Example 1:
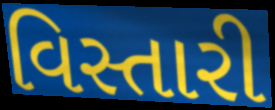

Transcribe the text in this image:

વિસ્તારી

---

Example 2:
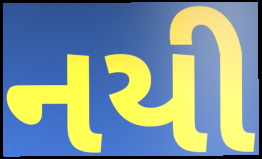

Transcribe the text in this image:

નયી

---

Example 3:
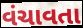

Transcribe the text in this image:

વંચાવતા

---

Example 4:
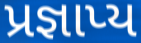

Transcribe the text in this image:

પ્રજ્ઞાપ્ય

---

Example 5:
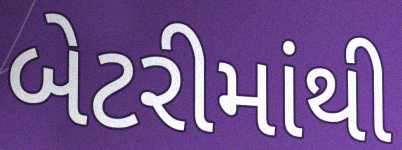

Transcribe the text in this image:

બેટરીમાંથી